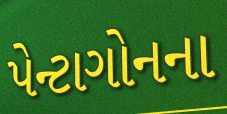
પેન્ટાગોનના